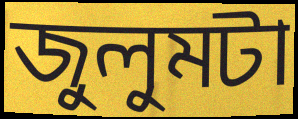
জুলুমটা